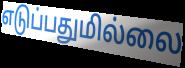
எடுப்பதுமில்லை